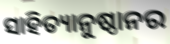
ସାହିତ୍ୟାନୁଷ୍ଠାନର